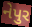
નેપુર